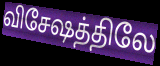
விசேஷத்திலே